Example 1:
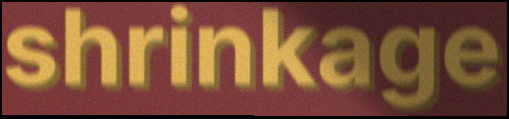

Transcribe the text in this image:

shrinkage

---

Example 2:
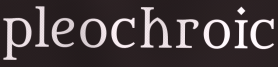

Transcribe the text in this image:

pleochroic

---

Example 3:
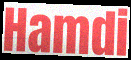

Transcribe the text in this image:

Hamdi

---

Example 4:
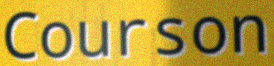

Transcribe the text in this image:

Courson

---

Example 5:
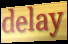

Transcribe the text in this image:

delay